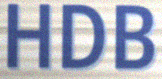
HDB